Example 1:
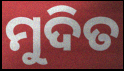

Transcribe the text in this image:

ମୁଦିତ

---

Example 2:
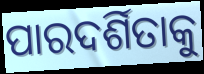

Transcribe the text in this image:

ପାରଦର୍ଶିତାକୁ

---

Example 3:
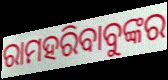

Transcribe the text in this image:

ରାମହରିବାବୁଙ୍କର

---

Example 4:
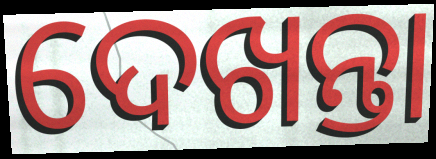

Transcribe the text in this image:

ଦେଖନ୍ତା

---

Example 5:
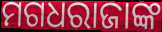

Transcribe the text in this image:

ମଗଧରାଜାଙ୍କ